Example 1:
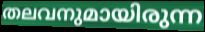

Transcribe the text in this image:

തലവനുമായിരുന്ന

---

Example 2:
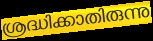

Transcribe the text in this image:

ശ്രദ്ധിക്കാതിരുന്നു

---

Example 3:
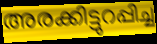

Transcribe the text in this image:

അരക്കിട്ടുറപ്പിച്ച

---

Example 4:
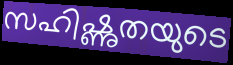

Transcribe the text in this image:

സഹിഷ്ണുതയുടെ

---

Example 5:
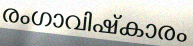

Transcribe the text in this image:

രംഗാവിഷ്‌കാരം